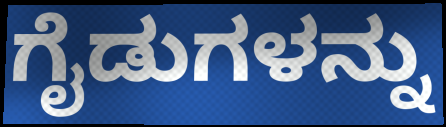
ಗೈಡುಗಳನ್ನು